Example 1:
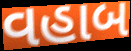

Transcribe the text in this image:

વહાબ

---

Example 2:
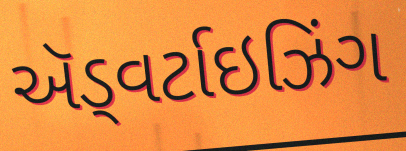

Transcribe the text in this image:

ઍડ્વર્ટાઇઝિંગ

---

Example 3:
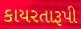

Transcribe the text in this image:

કાયરતારૂપી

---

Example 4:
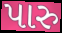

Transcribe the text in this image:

પારુ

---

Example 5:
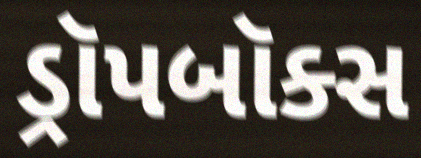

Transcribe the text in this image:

ડ્રૉપબૉક્સ